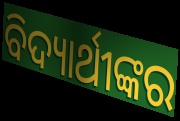
ବିଦ୍ୟାର୍ଥୀଙ୍କର